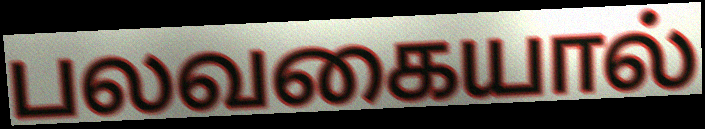
பலவகையால்